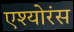
एश्योरंस